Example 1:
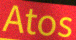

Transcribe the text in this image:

Atos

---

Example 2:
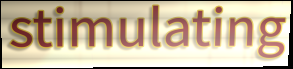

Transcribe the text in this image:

stimulating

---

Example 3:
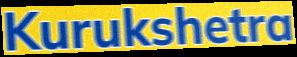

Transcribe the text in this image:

Kurukshetra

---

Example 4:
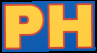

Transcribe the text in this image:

PH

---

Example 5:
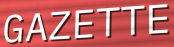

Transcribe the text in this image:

GAZETTE